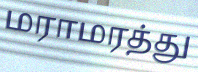
மராமரத்து